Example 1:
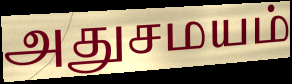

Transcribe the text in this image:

அதுசமயம்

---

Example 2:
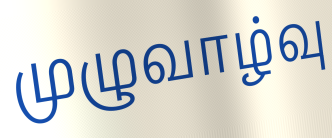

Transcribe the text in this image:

முழுவாழ்வு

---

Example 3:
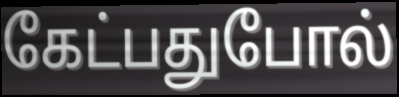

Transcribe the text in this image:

கேட்பதுபோல்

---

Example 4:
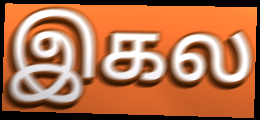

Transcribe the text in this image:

இகல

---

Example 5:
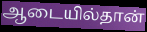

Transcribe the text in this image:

ஆடையில்தான்